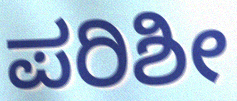
ಪರಿಶೀ